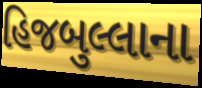
હિજબુલ્લાના